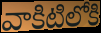
వాకిటిలోకి